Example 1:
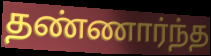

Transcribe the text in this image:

தண்ணார்ந்த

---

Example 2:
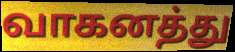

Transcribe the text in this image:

வாகனத்து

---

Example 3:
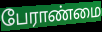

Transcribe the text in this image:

பேராண்மை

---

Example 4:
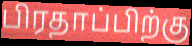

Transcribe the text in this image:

பிரதாப்பிற்கு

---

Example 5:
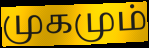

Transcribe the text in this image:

முகமும்